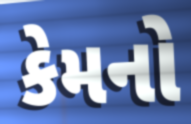
કેમનો